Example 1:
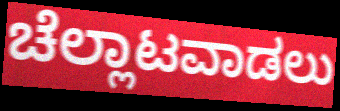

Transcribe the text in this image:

ಚೆಲ್ಲಾಟವಾಡಲು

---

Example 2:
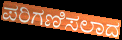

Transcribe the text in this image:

ಪರಿಗಣಿಸಲಾದ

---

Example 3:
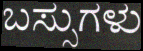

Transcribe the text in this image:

ಬಸ್ಸುಗಳು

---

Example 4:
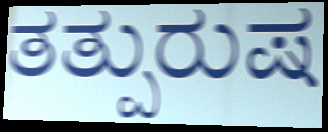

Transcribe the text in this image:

ತತ್ಪುರುಷ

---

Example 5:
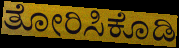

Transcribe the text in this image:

ತೋರಿಸಿಕೊಡಿ